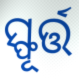
ସ୍ଫୂର୍ତ୍ତ